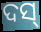
ଦସ୍